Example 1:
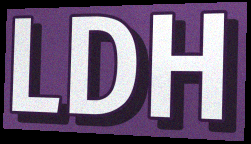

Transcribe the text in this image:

LDH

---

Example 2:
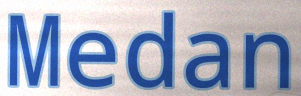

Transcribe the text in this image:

Medan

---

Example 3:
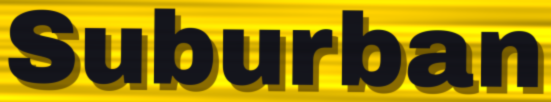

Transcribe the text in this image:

Suburban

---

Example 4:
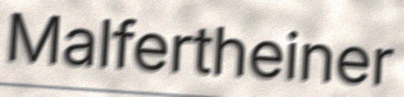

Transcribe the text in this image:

Malfertheiner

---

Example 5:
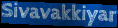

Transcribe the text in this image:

Sivavakkiyar